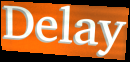
Delay